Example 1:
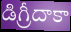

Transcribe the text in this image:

డిగ్రీదాకా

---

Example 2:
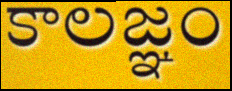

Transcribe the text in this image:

కాలజ్ఞం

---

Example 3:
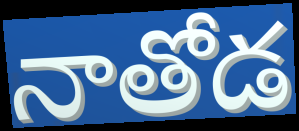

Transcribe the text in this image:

నాతోడ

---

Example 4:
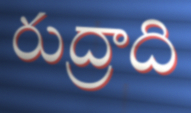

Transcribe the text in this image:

రుద్రాది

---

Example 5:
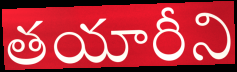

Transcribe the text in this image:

తయారీని